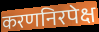
करणनिरपेक्ष